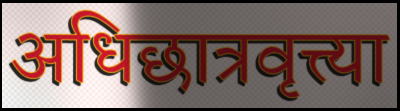
अधिछात्रवृत्त्या